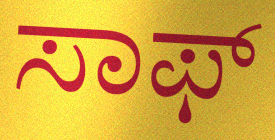
ಸಾಫ್